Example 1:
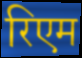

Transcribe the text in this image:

रिएम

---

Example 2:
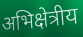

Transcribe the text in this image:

अभिक्षेत्रीय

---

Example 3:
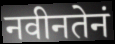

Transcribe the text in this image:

नवीनतेनं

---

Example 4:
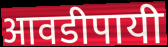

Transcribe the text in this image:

आवडीपायी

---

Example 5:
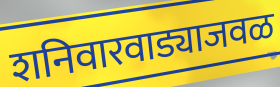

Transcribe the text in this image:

शनिवारवाड्याजवळ